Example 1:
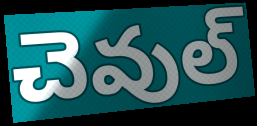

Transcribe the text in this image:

చెవుల్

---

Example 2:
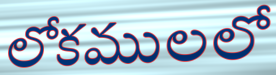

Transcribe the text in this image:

లోకములలో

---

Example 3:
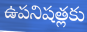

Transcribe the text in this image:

ఉపనిషత్లకు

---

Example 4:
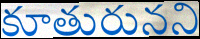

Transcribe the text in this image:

కూతురునని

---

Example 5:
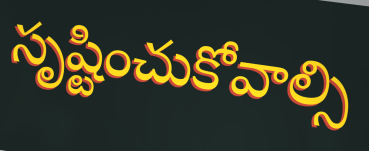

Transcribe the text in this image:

సృష్టించుకోవాల్సి